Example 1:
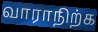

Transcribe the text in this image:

வாராநிற்க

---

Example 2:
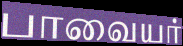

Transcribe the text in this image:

பாவையர்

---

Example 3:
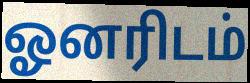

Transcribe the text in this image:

ஓனரிடம்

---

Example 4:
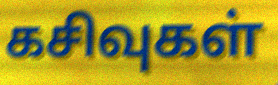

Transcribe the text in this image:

கசிவுகள்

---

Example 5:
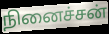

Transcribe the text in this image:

நினைச்சன்